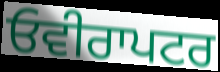
ਓਵੀਰਾਪਟਰ